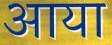
आया